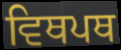
ਵਿਥਪਥ